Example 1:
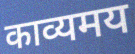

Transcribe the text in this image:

काव्यमय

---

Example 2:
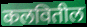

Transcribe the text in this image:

कलवितील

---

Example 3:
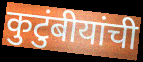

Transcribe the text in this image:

कुटुंबीयांची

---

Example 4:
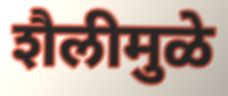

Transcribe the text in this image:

शैलीमुळे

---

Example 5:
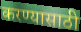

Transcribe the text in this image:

करण्यासाठी